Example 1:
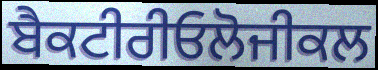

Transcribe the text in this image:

ਬੈਕਟੀਰੀਓਲੋਜੀਕਲ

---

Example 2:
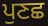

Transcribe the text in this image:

ਪੁਣਛ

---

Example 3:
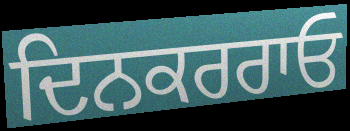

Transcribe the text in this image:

ਦਿਨਕਰਰਾਓ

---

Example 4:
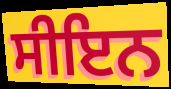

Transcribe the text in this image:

ਸੀਇਨ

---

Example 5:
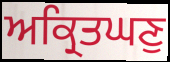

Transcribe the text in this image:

ਅਕ੍ਰਿਤਘਣੁ